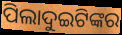
ପିଲାଦୁଇଟିଙ୍କର